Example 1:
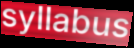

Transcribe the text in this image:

syllabus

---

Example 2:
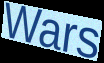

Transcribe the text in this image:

Wars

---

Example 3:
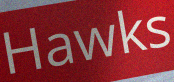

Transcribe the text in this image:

Hawks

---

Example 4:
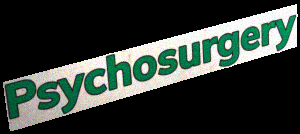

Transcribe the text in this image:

Psychosurgery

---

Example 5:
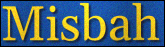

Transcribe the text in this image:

Misbah